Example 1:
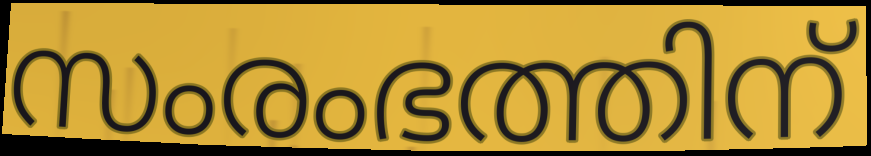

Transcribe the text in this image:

സംരംഭത്തിന്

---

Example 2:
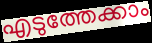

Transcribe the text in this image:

എടുത്തേക്കാം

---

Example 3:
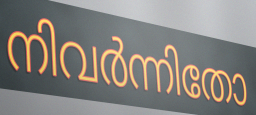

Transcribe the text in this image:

നിവർന്നിതോ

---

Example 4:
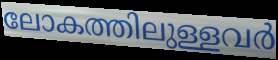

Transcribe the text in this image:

ലോകത്തിലുള്ളവർ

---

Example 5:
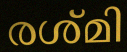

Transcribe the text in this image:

രശ്മി